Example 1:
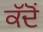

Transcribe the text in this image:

ਕੱਦੋਂ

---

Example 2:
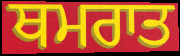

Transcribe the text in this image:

ਥਮਰਾਤ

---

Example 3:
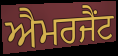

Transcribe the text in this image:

ਐਮਰਜੈਂਟ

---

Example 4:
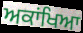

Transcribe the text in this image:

ਅਕਾਂਖਿਆ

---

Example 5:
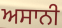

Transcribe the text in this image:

ਅਸਾਨੀ